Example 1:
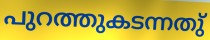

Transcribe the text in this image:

പുറത്തുകടന്നതു്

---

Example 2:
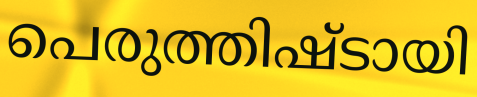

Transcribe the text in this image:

പെരുത്തിഷ്ടായി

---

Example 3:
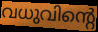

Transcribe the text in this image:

വധുവിന്റെ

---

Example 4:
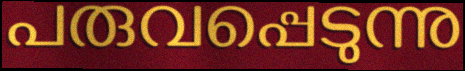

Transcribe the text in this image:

പരുവപ്പെടുന്നു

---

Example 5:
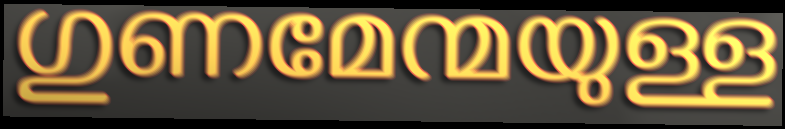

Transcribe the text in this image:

ഗുണമേന്മയുള്ള